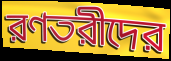
রণতরীদের